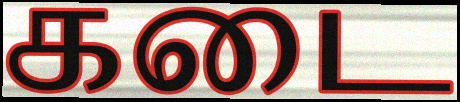
கடை